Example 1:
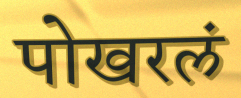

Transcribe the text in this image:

पोखरलं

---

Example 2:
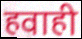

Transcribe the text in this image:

हवाही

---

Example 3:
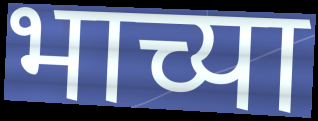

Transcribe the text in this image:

भाच्या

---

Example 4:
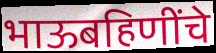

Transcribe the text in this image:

भाऊबहिणींचे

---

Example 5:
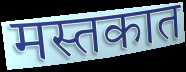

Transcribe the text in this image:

मस्तकात